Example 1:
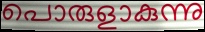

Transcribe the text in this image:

പൊരുളാകുന്നു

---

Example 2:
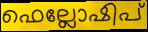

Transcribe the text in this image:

ഫെല്ലോഷിപ്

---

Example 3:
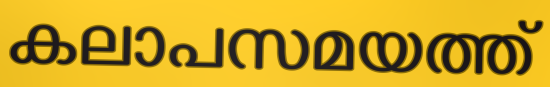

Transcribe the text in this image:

കലാപസമയത്ത്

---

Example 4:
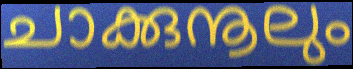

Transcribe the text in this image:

ചാക്കുനൂലും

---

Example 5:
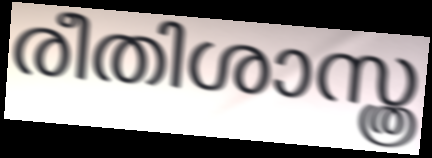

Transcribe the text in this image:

രീതിശാസ്ത്ര